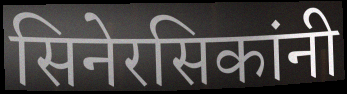
सिनेरसिकांनी